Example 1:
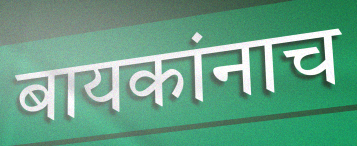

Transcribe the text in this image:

बायकांनाच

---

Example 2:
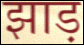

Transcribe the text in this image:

झाड़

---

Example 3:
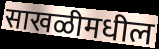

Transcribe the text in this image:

साखळीमधील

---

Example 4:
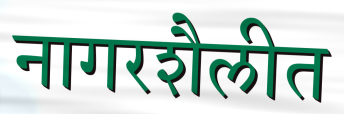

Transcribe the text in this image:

नागरशैलीत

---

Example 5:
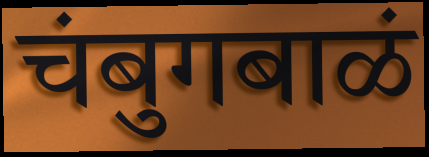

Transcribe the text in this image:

चंबुगबाळं